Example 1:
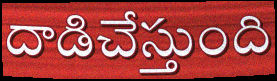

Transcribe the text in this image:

దాడిచేస్తుంది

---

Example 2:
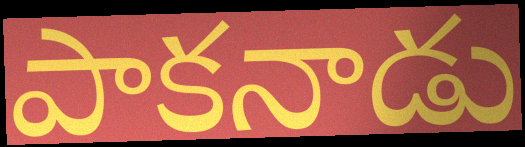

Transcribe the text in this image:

పాకనాడు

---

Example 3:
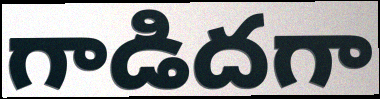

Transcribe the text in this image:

గాడిదగా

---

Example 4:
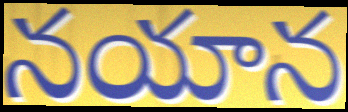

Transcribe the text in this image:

నయాన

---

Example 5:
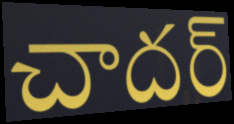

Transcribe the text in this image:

చాదర్